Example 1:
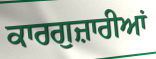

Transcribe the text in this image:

ਕਾਰਗੁਜ਼ਾਰੀਆਂ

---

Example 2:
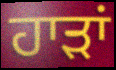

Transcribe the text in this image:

ਹਾੜਾਂ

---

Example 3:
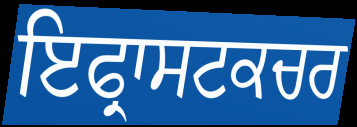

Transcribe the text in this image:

ਇਫ੍ਰਾਸਟਕਚਰ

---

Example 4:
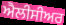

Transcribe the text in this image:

ਐਲੀਸੀਅਰ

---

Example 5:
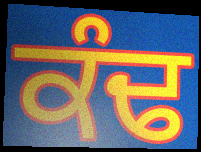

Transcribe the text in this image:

ਕੰਢ